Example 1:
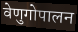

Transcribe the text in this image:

वेणुगोपालन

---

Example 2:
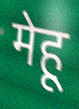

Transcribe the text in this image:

मेहू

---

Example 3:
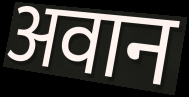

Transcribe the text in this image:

अवान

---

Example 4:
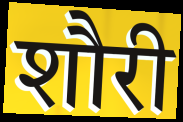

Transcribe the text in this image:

शौरी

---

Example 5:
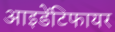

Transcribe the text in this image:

आइडेंटिफायर